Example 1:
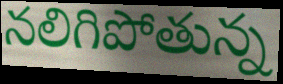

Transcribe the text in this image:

నలిగిపోతున్న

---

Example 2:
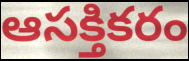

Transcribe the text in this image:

ఆసక్తికరం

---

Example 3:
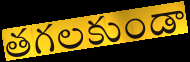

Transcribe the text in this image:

తగలకుండా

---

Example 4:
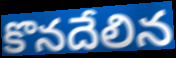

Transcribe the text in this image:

కొనదేలిన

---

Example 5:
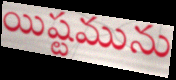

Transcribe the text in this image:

యిష్టమును